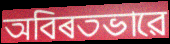
অবিৰতভাৱে